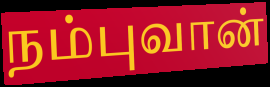
நம்புவான்